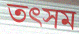
তৎসম